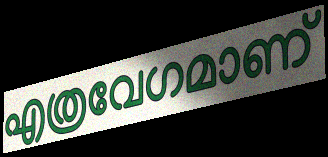
എത്രവേഗമാണ്